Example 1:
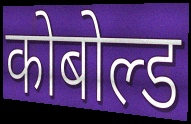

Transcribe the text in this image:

कोबोल्ड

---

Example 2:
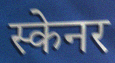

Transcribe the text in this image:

स्केनर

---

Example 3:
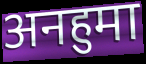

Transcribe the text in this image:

अनहुमा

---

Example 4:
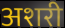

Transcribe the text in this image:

अशरी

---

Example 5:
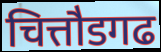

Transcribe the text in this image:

चित्तौडगढ